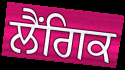
ਲੈਂਗਿਕ